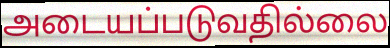
அடையப்படுவதில்லை